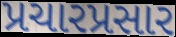
પ્રચારપ્રસાર